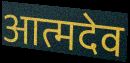
आत्मदेव